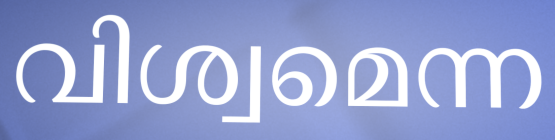
വിശ്വമെന്ന